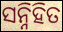
ସନ୍ନିହିତ